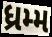
ધ્રમ્મ